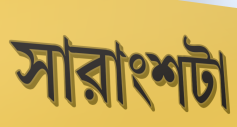
সারাংশটা